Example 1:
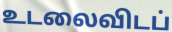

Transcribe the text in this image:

உடலைவிடப்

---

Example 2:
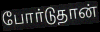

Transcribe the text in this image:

போர்டுதான்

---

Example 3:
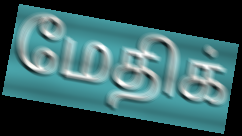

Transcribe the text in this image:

மேதிக்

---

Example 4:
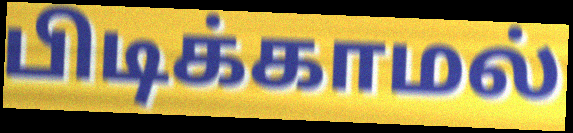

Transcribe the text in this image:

பிடிக்காமல்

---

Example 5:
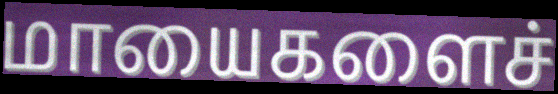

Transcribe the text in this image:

மாயைகளைச்